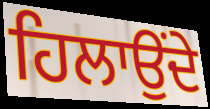
ਹਿਲਾਉਂਦੇ